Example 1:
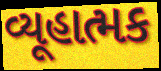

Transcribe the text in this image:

વ્યૂહાત્મક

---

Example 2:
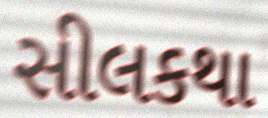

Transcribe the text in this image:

સીલકથા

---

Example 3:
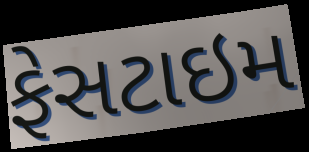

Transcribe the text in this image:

ફેસટાઇમ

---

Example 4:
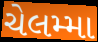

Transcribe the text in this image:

ચેલમ્મા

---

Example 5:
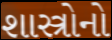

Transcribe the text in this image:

શાસ્ત્રોનો